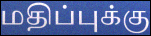
மதிப்புக்கு